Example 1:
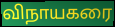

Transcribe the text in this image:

விநாயகரை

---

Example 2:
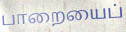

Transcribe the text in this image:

பாறையைப்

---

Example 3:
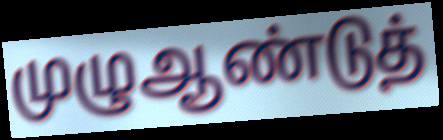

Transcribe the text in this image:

முழுஆண்டுத்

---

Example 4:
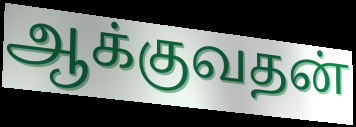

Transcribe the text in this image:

ஆக்குவதன்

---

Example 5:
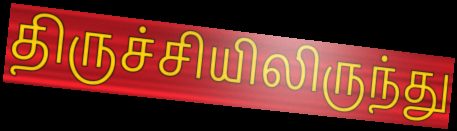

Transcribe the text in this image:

திருச்சியிலிருந்து